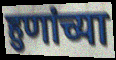
हुणांच्या